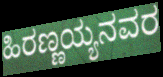
ಹಿರಣ್ಣಯ್ಯನವರ